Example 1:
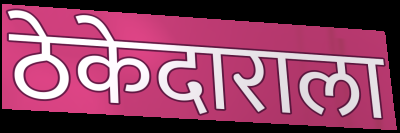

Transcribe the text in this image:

ठेकेदाराला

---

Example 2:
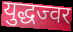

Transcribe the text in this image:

युद्धज्वर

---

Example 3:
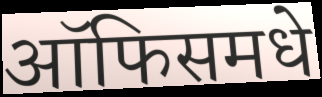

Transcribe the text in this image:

ऑफिसमधे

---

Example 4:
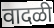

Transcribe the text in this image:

वादळी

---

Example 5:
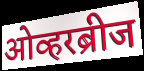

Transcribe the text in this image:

ओव्हरब्रीज